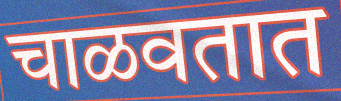
चाळवतात